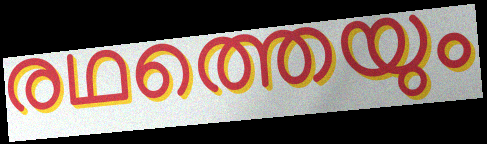
രഥത്തെയും